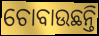
ଚୋବାଉଛନ୍ତି